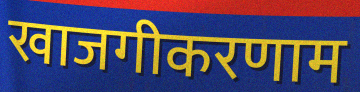
खाजगीकरणाम